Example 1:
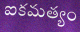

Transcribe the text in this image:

ఐకమత్యం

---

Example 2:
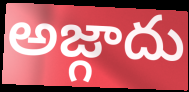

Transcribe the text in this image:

అజ్గాదు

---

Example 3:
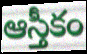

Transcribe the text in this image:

ఆస్తీకం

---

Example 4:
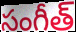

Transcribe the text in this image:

సంగీత్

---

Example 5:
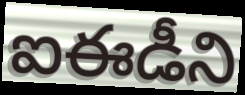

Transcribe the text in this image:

ఐఈడీని